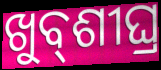
ଖୁବ୍‌ଶୀଘ୍ର